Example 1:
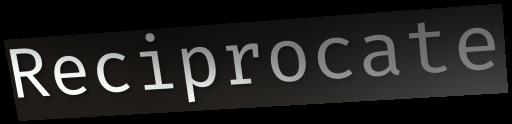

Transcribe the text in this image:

Reciprocate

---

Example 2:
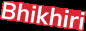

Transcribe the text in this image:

Bhikhiri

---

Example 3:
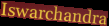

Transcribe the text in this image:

Iswarchandra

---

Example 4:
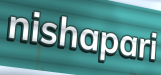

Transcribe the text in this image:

nishapari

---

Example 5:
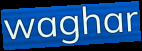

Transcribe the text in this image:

waghar